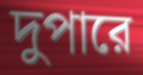
দুপারে